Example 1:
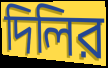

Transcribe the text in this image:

দিলির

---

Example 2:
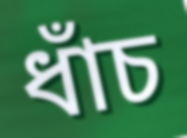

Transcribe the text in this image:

ধাঁচ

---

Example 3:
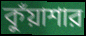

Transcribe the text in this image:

কুঁয়াশার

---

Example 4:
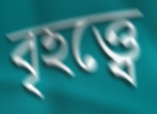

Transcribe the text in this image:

বৃহত্ত্বে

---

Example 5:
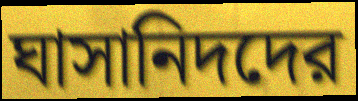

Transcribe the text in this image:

ঘাসানিদদের